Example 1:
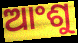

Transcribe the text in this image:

ଆଂଶୁ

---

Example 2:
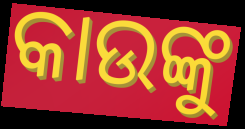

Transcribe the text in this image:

କାଉଙ୍କୁ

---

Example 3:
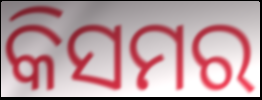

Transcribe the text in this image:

କିସମର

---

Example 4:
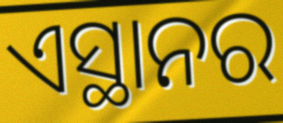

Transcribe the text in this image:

ଏସ୍ଥାନର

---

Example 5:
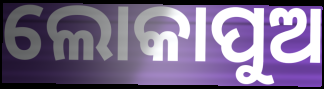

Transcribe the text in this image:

ଲୋକାପୁଅ